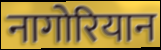
नागोरियान